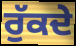
ਰੁੱਕਦੇ